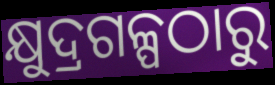
କ୍ଷୁଦ୍ରଗଳ୍ପଠାରୁ